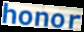
honor